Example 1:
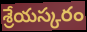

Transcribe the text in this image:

శ్రేయస్కరం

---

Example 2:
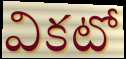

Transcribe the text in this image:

వికటో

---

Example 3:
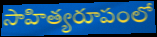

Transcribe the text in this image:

సాహిత్యరూపంలో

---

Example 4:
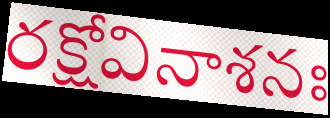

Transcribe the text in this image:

రక్షోవినాశనః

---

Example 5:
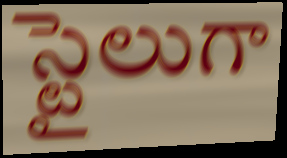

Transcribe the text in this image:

స్టైలుగా